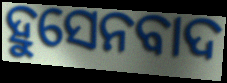
ହୁସେନବାଦ